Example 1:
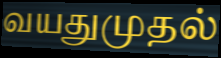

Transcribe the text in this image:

வயதுமுதல்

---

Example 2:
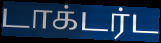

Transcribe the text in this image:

டாக்டர்ட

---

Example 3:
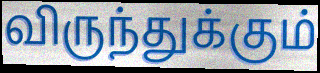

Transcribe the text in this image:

விருந்துக்கும்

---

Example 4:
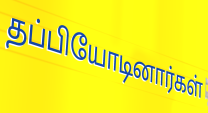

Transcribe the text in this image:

தப்பியோடினார்கள்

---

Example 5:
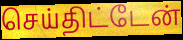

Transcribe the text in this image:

செய்திட்டேன்